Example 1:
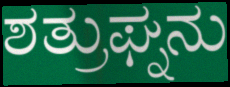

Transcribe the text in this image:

ಶತ್ರುಘ್ನನು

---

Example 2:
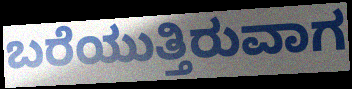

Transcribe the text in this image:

ಬರೆಯುತ್ತಿರುವಾಗ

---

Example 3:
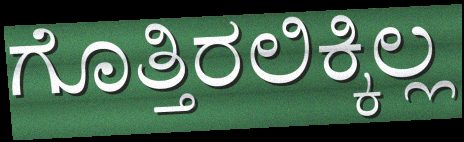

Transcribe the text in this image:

ಗೊತ್ತಿರಲಿಕ್ಕಿಲ್ಲ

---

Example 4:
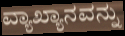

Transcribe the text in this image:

ವ್ಯಾಖ್ಯಾನವನ್ನು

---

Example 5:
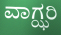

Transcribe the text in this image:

ವಾಗ್ಝರಿ